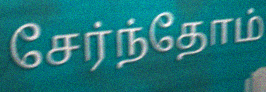
சேர்ந்தோம்